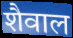
शैवाल